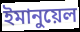
ইমানুয়েল